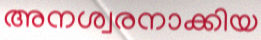
അനശ്വരനാക്കിയ